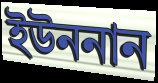
ইউননান